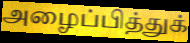
அழைப்பித்துக்